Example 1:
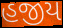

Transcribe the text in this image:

હજીય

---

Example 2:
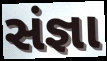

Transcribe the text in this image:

સંજ્ઞા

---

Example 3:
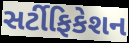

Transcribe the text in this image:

સર્ટીફિકેશન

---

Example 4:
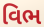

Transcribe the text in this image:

વિભ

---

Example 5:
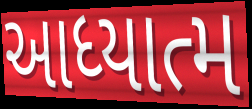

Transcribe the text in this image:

આધ્યાત્મ